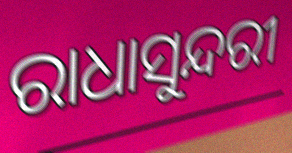
ରାଧାସୁନ୍ଦରୀ